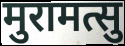
मुरामत्सु